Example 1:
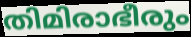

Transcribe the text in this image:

തിമിരാഭീരും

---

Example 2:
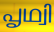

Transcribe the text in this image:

പൃഥ്വി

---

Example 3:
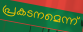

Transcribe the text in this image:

പ്രകടനമെന്ന്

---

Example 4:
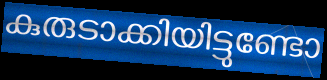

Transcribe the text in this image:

കുരുടാക്കിയിട്ടുണ്ടോ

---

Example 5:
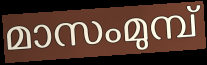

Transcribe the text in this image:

മാസംമുമ്പ്